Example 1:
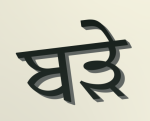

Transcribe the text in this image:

ਬਡ਼ੇ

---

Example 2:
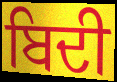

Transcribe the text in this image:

ਬਿਦੀ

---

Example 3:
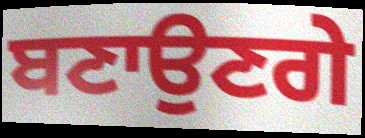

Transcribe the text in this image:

ਬਣਾਉਣਗੇ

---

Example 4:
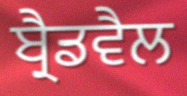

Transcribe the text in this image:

ਬ੍ਰੈਡਵੈਲ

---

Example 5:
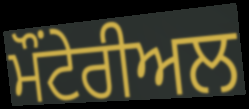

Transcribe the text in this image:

ਮੌਂਟੇਰੀਅਲ